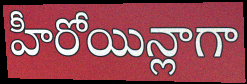
హీరోయిన్లాగా